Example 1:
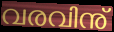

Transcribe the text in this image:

വരവിനു്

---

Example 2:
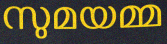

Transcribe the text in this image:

സുമയമ്മ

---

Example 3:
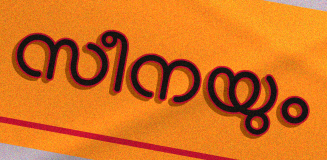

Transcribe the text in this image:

സീനയും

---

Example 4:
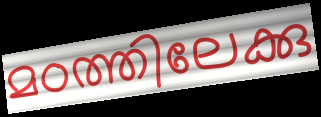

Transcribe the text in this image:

മഠത്തിലേക്കു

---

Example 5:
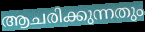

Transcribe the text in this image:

ആചരിക്കുന്നതും